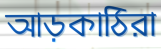
আড়কাঠিরা